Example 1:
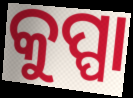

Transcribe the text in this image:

କୁପ୍ପା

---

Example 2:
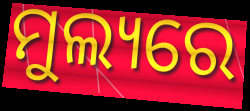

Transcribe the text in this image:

ମୁଲ୍ୟରେ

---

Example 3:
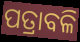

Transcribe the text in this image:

ପତ୍ରାବଳି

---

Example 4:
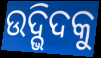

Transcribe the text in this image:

ଉଦ୍ଭିଦକୁ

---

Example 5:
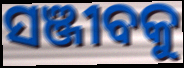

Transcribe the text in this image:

ସଞ୍ଜୀବକୁ